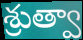
శ్రుత్వా